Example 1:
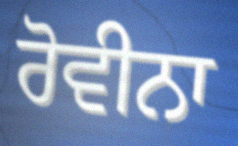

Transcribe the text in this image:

ਰੋਵੀਨਾ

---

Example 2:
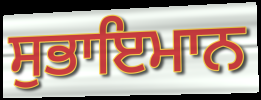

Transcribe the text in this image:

ਸੁਭਾਇਮਾਨ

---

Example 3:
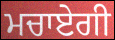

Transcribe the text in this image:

ਮਚਾਏਗੀ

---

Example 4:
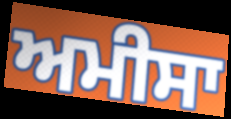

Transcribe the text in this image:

ਅਮੀਸਾ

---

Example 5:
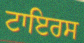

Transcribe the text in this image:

ਟਾਇਰਸ